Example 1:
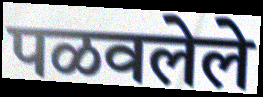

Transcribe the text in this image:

पळवलेले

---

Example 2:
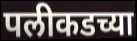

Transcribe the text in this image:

पलीकडच्या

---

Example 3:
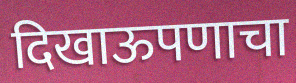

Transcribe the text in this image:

दिखाऊपणाचा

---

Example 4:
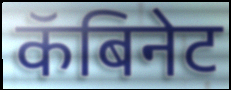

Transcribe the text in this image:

कॅबिनेट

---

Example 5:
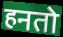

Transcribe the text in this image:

हनतो